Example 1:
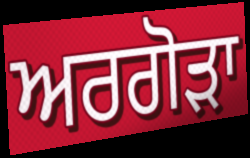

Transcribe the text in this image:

ਅਰਗੋੜਾ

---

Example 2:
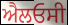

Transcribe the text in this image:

ਐਲਓਸੀ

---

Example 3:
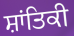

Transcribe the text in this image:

ਸ਼ਾਂਤਿਕੀ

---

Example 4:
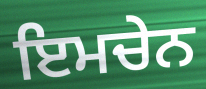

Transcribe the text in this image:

ਇਮਚੇਨ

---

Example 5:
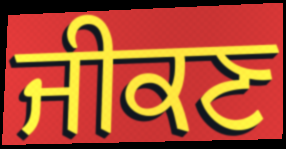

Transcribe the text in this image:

ਜੀਕਣ